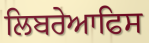
ਲਿਬਰੇਆਫਿਸ